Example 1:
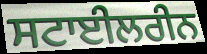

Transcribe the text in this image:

ਸਟਾਈਲਰੀਨ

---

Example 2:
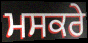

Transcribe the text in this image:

ਮਸਕਰੇ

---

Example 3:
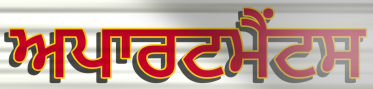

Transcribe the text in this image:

ਅਪਾਰਟਮੈਂਟਸ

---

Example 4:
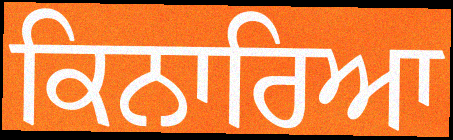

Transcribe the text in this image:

ਕਿਨਾਰਿਆ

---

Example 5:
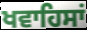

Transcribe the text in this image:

ਖਵਾਹਿਸਾਂ